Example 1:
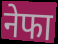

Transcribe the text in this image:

नेफा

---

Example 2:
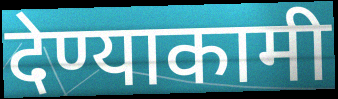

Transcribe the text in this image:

देण्याकामी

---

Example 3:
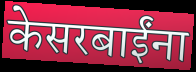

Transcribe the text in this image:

केसरबाईंना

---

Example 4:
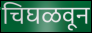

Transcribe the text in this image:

चिघळवून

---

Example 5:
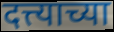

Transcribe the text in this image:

दत्त्याच्या